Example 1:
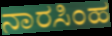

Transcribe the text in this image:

ನಾರಸಿಂಹ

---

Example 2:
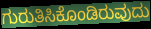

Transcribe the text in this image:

ಗುರುತಿಸಿಕೊಂಡಿರುವುದು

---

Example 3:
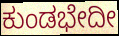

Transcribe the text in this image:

ಕುಂಡಭೇದೀ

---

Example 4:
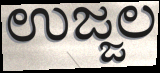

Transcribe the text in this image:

ಉಜ್ಜಲ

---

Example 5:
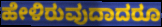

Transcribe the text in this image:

ಹೇಳಿರುವುದಾದರೂ